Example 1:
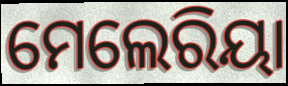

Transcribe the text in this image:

ମେଲେରିୟା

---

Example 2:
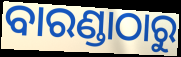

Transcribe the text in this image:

ବାରଣ୍ଡାଠାରୁ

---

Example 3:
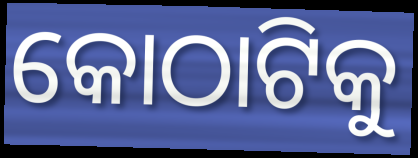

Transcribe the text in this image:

କୋଠାଟିକୁ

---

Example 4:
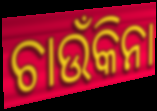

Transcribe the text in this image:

ଚାଉଁକିନା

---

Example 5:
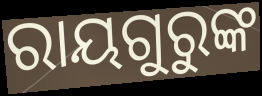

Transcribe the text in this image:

ରାୟଗୁରୁଙ୍କ